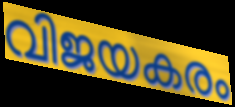
വിജയകരം